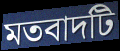
মতবাদটি